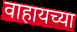
वाहायच्या